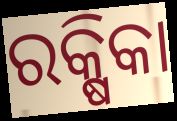
ରକ୍ଷିକା